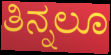
ತಿನ್ನಲೂ